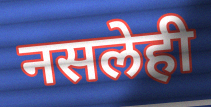
नसलेही